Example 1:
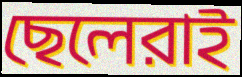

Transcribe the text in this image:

ছেলেরাই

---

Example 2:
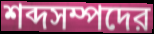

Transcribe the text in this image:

শব্দসম্পদের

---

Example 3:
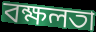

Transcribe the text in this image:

বক্ষলতা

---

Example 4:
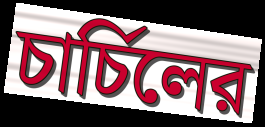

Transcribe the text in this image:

চার্চিলের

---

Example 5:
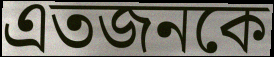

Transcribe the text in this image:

এতজনকে